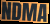
NDMA